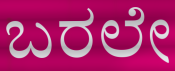
ಬರಲೇ